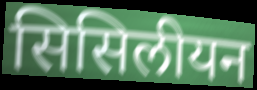
सिसिलीयन